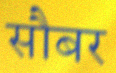
सौबर